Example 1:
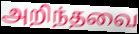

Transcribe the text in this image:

அறிந்தவை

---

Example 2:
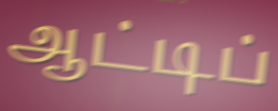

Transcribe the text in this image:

ஆட்டிப்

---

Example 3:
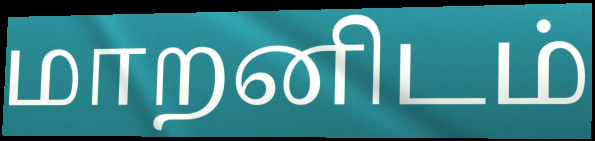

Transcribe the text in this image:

மாறனிடம்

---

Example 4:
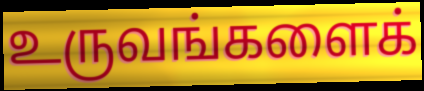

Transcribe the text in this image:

உருவங்களைக்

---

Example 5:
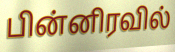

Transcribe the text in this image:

பின்னிரவில்